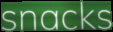
snacks